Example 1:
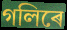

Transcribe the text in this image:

গলিৰে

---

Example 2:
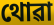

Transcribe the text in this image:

থোৱা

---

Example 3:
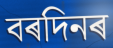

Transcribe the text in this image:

বৰদিনৰ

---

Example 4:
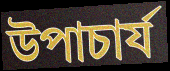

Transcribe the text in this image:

উপাচাৰ্য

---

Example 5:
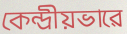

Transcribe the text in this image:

কেন্দ্ৰীয়ভাৱে